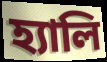
হ্যালি